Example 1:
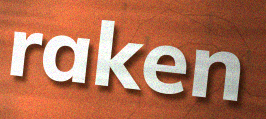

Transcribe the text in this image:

raken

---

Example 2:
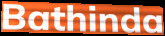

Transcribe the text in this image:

Bathinda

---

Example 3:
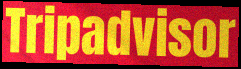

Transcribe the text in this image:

Tripadvisor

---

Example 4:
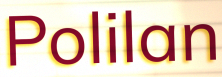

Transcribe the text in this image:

Polilan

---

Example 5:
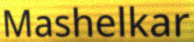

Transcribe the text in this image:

Mashelkar